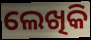
ଲେଖିକି